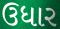
ઉધાર